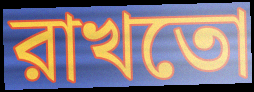
রাখতো